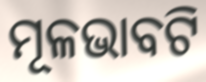
ମୂଳଭାବଟି